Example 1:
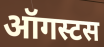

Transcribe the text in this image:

ऑगस्टस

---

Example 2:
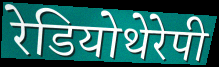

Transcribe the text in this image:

रेडियोथेरेपी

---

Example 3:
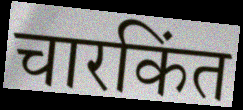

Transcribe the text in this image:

चारकिंत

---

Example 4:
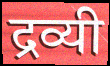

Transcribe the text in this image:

द्रव्यी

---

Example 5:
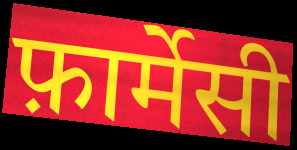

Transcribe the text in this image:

फ़ार्मेसी